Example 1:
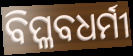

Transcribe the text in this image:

ବିପ୍ଳବଧର୍ମୀ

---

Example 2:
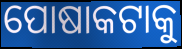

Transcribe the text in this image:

ପୋଷାକଟାକୁ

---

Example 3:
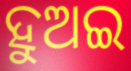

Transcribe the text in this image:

ହୁଅଇ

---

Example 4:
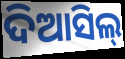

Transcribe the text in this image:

ଦିଆସିଲ୍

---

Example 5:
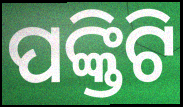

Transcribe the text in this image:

ପଙ୍କ୍ତିଟି